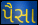
પૈસા